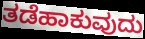
ತಡೆಹಾಕುವುದು